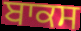
ਬਾਕਸ